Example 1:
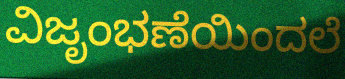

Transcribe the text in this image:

ವಿಜೃಂಭಣೆಯಿಂದಲೆ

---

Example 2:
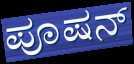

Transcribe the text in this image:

ಪೂಷನ್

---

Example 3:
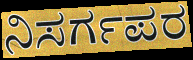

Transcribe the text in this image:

ನಿಸರ್ಗಪರ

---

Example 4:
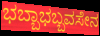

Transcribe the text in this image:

ಭಬ್ಬಾಭಬ್ಬವಸೇನ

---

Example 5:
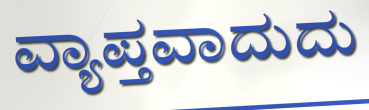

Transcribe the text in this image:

ವ್ಯಾಪ್ತವಾದುದು